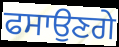
ਫਸਾਉਣਗੇ